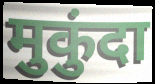
मुकुंदा